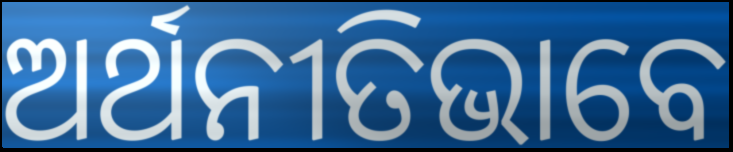
ଅର୍ଥନୀତିଭାବେ